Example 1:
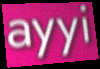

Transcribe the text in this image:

ayyi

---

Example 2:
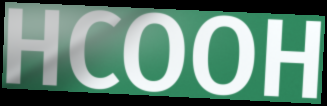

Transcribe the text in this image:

HCOOH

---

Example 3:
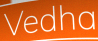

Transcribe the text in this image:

Vedha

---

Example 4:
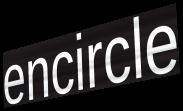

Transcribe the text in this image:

encircle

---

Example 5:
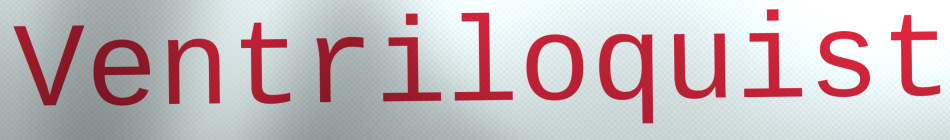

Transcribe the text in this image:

Ventriloquist